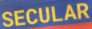
SECULAR